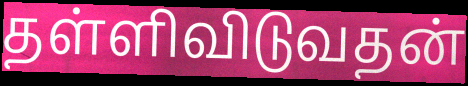
தள்ளிவிடுவதன்